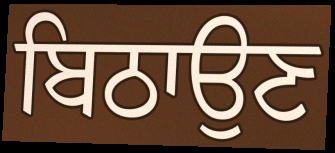
ਬਿਠਾਉਣ